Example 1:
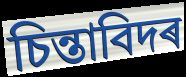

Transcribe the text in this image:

চিন্তাবিদৰ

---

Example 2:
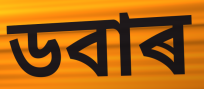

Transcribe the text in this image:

ডবাৰ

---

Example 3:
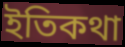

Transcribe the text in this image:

ইতিকথা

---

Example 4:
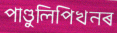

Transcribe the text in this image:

পাণ্ডুলিপিখনৰ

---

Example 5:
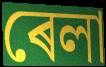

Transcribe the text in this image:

ৰেলা